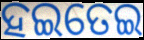
ହଇତେଇ